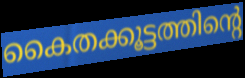
കൈതക്കൂട്ടത്തിന്റെ